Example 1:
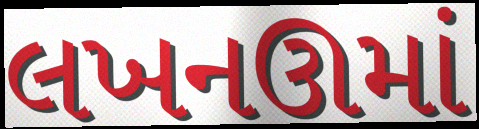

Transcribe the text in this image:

લખનઊમાં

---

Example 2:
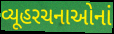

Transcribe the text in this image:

વ્યૂહરચનાઓનાં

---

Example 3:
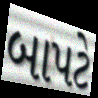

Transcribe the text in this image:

બાપટે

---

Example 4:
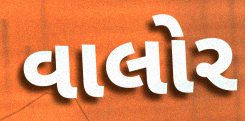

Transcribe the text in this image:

વાલોર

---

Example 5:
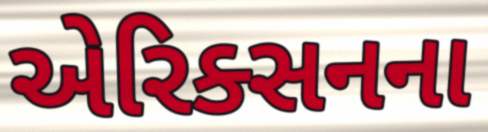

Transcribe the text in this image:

એરિક્સનના